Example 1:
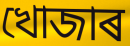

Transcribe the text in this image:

খোজাৰ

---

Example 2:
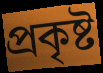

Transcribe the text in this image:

প্ৰকৃষ্ট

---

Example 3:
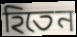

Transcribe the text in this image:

হিতেন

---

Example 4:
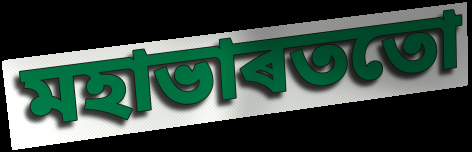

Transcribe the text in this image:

মহাভাৰততো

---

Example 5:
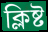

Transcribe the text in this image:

ক্লিষ্ট